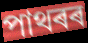
পাথৰৰ